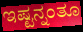
ಇಷ್ಟನ್ನಂತೂ